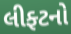
લીફ્ટનો